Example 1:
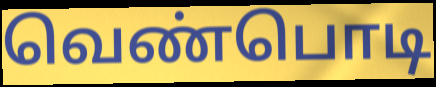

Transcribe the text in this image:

வெண்பொடி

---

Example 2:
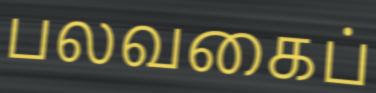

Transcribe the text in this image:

பலவகைப்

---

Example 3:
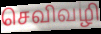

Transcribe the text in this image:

செவிவழி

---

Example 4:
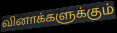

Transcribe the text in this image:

வினாக்களுக்கும்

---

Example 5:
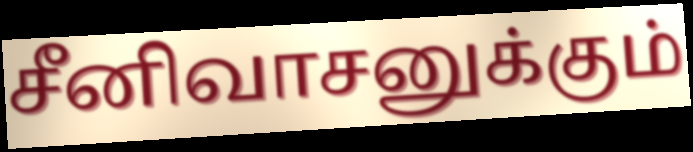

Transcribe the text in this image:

சீனிவாசனுக்கும்